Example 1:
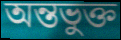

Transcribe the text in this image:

অন্তভুক্ত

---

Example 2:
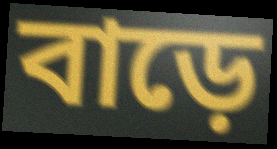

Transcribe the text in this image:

বাড়ে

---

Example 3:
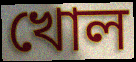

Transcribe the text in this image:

খোল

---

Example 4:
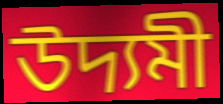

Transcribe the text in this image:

উদ্যমী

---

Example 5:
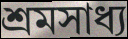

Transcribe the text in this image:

শ্ৰমসাধ্য